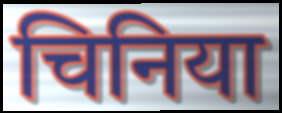
चिनिया